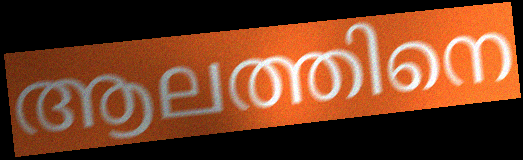
ആലത്തിനെ